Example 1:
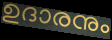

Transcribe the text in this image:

ഉദാരനും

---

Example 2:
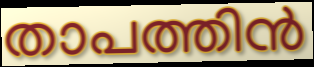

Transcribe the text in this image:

താപത്തിൻ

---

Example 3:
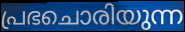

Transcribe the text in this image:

പ്രഭചൊരിയുന്ന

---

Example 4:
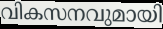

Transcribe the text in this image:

വികസനവുമായി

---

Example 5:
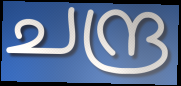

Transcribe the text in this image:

ചന്ദ്ര